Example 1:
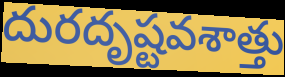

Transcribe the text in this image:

దురదృష్టవశాత్తు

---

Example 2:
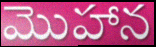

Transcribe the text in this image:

మొహాన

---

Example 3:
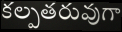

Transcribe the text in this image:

కల్పతరువుగా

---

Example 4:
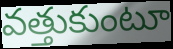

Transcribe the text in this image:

వత్తుకుంటూ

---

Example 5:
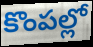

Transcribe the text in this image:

కొంపల్లో